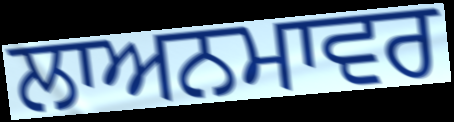
ਲਾਅਨਮਾਵਰ